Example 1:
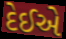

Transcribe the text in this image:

દેઈએ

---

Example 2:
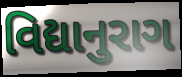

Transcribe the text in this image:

વિદ્યાનુરાગ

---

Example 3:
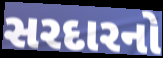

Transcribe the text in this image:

સરદારનો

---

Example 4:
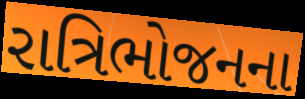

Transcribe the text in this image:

રાત્રિભોજનના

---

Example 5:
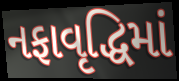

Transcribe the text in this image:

નફાવૃદ્ધિમાં